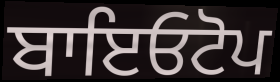
ਬਾਇਓਟੋਪ